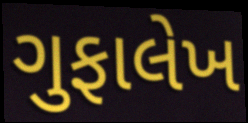
ગુફાલેખ